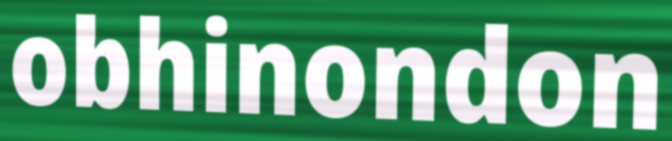
obhinondon